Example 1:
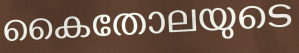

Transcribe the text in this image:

കൈതോലയുടെ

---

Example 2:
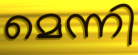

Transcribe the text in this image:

മെന്നി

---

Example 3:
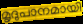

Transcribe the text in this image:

മൃദുപാനമായി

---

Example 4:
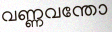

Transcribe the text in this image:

വണ്ണവന്തോ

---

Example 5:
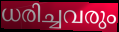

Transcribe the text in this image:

ധരിച്ചവരും